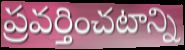
ప్రవర్తించటాన్ని